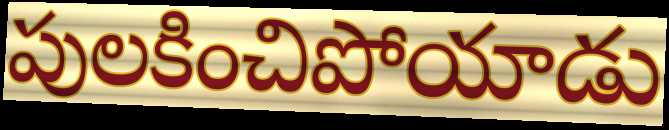
పులకించిపోయాడు